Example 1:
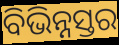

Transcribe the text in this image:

ବିଭିନ୍ନସ୍ତର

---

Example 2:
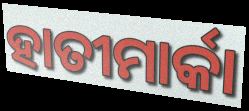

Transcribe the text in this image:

ହାତୀମାର୍କା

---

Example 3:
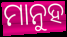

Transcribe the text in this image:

ମାନୁହ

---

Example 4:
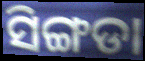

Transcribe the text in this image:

ସିଙ୍ଗଡା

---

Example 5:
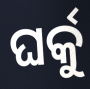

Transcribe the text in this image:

ଘର୍କୁ